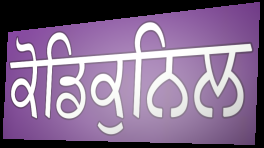
ਕੋਡਿਕੁਨਿਲ